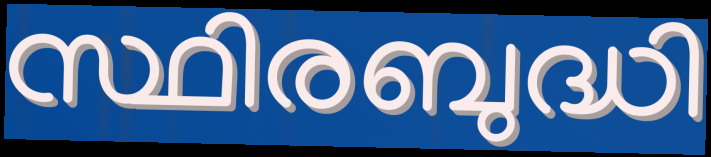
സ്ഥിരബുദ്ധി